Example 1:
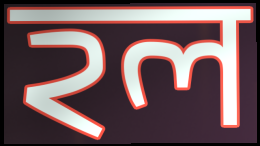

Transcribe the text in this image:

হল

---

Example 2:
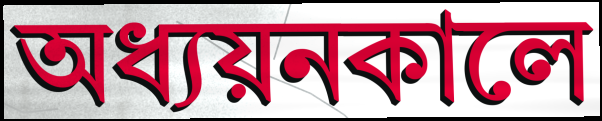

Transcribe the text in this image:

অধ্যয়নকালে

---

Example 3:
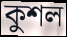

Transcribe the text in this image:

কুশল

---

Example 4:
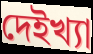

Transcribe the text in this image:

দেইখ্যা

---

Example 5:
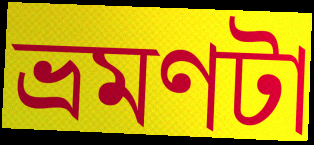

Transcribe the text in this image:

ভ্রমণটা